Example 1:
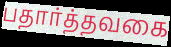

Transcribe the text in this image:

பதார்த்தவகை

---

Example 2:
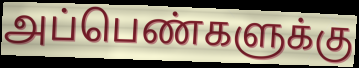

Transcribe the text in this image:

அப்பெண்களுக்கு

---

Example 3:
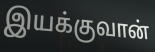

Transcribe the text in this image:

இயக்குவான்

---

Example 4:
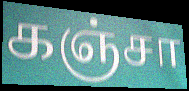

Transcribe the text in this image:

கஞ்சா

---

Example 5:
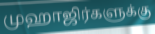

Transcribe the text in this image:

முஹாஜிர்களுக்கு